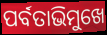
ପର୍ବତାଭିମୁଖେ